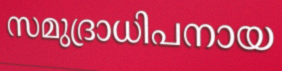
സമുദ്രാധിപനായ